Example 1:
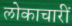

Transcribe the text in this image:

लोकाचारीं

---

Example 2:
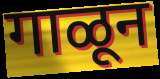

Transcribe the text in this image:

गाळून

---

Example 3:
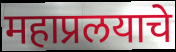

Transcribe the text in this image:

महाप्रलयाचे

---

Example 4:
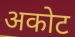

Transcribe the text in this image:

अकोट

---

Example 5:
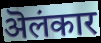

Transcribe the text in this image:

ऄलंकार